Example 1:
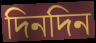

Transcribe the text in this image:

দিনদিন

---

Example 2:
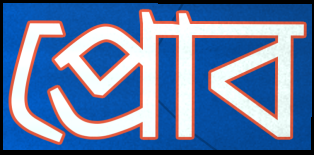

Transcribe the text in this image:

প্রোব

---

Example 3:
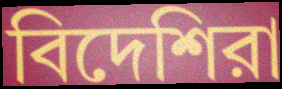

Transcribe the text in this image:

বিদেশিরা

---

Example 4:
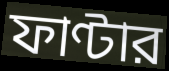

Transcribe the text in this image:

ফাণ্টার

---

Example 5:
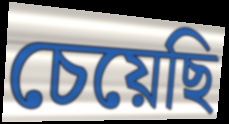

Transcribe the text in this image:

চেয়েছি